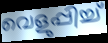
വെളുപ്പിച്ച്